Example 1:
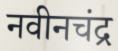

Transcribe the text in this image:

नवीनचंद्र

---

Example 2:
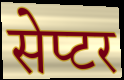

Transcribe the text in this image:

सेप्टर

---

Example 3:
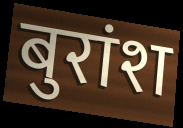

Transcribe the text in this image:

बुरांश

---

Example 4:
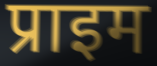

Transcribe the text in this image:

प्राइम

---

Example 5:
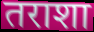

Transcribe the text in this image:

तराशा